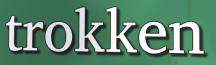
trokken